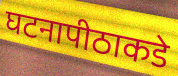
घटनापीठाकडे